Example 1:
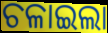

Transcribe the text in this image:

ଚଳାଇଲା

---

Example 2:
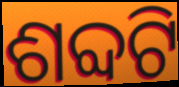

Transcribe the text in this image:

ଶବ୍ଦଟି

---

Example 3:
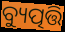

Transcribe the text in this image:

ବ୍ୟୁତ୍ପତ୍ତି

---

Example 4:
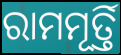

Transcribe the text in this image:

ରାମମୂର୍ତ୍ତି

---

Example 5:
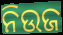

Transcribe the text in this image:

ନିଉଜ